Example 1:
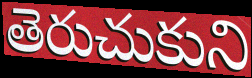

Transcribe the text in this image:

తెరుచుకుని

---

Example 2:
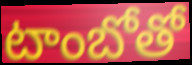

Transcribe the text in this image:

టాంబోతో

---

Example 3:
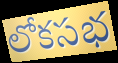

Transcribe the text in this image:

లోకసభ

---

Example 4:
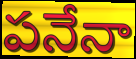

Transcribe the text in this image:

పనేనా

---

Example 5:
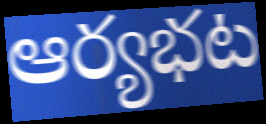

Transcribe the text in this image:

ఆర్యభట